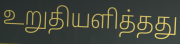
உறுதியளித்தது